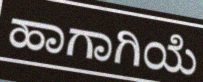
ಹಾಗಾಗಿಯೆ